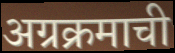
अग्रक्रमाची